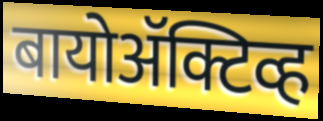
बायोॲक्टिव्ह